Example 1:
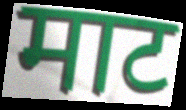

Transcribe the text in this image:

माट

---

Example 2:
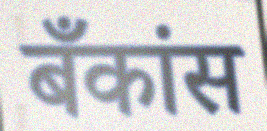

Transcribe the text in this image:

बँकांस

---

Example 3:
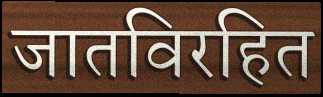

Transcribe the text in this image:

जातविरहित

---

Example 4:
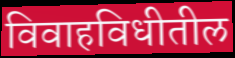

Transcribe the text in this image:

विवाहविधीतील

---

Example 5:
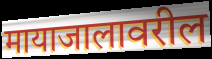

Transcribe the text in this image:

मायाजालावरील